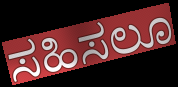
ಸಹಿಸಲೂ